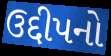
ઉદ્દીપનો